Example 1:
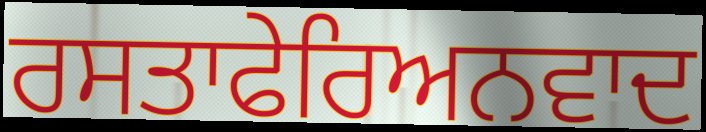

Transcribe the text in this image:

ਰਸਤਾਫੇਰਿਅਨਵਾਦ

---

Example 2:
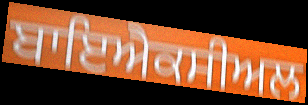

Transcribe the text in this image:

ਬਾਇਐਕਸੀਅਲ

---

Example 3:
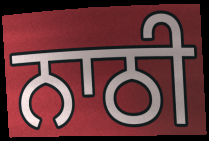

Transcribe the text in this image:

ਨਾਠੀ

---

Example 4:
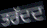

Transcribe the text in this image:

ਤਰੱਦਦ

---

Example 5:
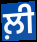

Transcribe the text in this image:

ਲ਼ੀ